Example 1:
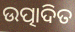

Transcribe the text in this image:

ଉତ୍ପାଦିତ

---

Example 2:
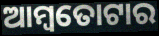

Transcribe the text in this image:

ଆମ୍ବତୋଟାର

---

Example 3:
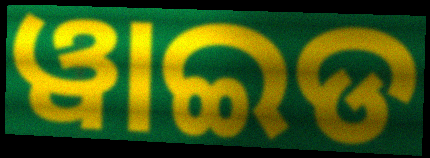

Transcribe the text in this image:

ୱାଇଡ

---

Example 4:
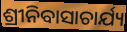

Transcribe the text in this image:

ଶ୍ରୀନିବାସାଚାର୍ଯ୍ୟ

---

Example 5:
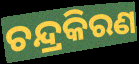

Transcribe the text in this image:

ଚନ୍ଦ୍ରକିରଣ